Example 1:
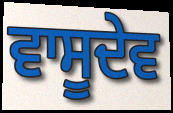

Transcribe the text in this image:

ਵਾਸੂਦੇਵ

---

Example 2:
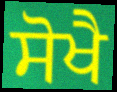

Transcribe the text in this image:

ਸੋਖੈ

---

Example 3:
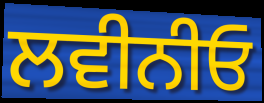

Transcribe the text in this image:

ਲਵੀਨੀਓ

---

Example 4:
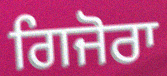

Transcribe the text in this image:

ਗਿਜੋਰਾ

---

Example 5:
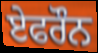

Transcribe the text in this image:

ਏਫਰੌਨ